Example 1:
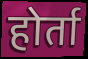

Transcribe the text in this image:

होर्ता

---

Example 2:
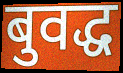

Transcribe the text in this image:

बुवद्ध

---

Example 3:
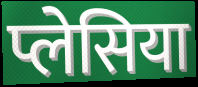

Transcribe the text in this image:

प्लेसिया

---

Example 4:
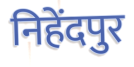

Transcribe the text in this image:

निहेंदपुर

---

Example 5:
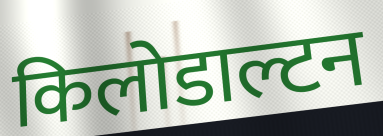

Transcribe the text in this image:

किलोडाल्टन